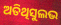
ଅତିଥିସୁଲଭ